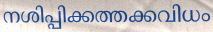
നശിപ്പിക്കത്തക്കവിധം